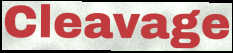
Cleavage